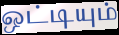
ஒட்டியும்